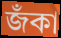
জঁকা